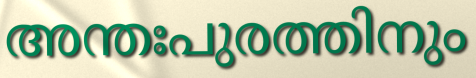
അന്തഃപുരത്തിനും